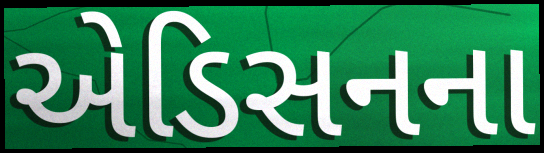
એડિસનના